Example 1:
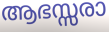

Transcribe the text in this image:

ആഭസ്സരാ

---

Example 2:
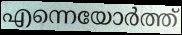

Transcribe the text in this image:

എന്നെയോർത്ത്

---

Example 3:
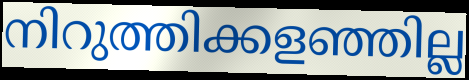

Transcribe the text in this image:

നിറുത്തിക്കളഞ്ഞില്ല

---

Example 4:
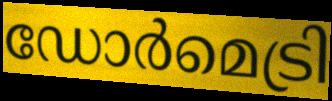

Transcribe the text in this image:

ഡോർമെട്രി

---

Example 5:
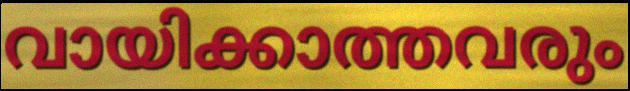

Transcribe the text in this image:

വായിക്കാത്തവരും